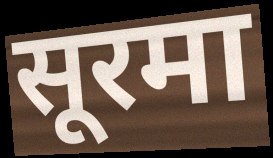
सूरमा